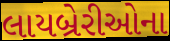
લાયબ્રેરીઓના